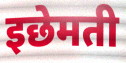
इछेमती